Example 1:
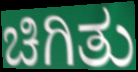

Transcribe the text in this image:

ಚಿಗಿತು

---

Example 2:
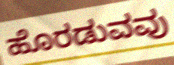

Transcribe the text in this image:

ಹೊರಡುವವು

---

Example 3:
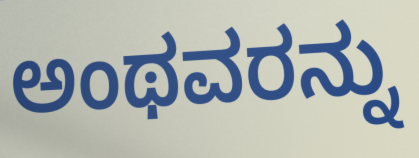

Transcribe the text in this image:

ಅಂಥವರನ್ನು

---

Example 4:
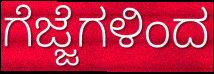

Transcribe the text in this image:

ಗೆಜ್ಜೆಗಳಿಂದ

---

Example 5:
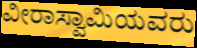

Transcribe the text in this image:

ವೀರಾಸ್ವಾಮಿಯವರು